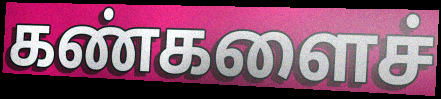
கண்களைச்